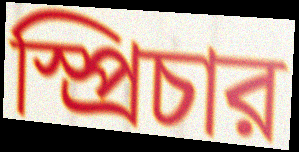
স্প্রিচার